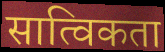
सात्विकता